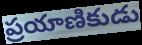
ప్రయాణికుడు